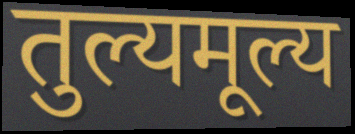
तुल्यमूल्य